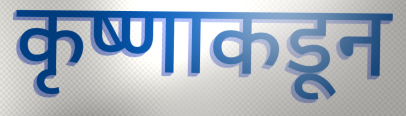
कृष्णाकडून